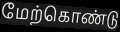
மேற்கொண்டு